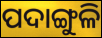
ପଦାଙ୍ଗୁଳି